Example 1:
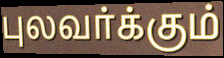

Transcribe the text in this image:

புலவர்க்கும்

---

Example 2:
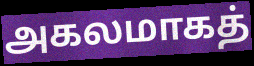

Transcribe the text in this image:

அகலமாகத்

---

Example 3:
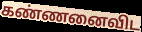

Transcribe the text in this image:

கண்ணனைவிட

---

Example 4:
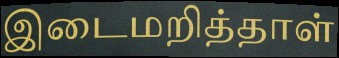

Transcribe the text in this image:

இடைமறித்தாள்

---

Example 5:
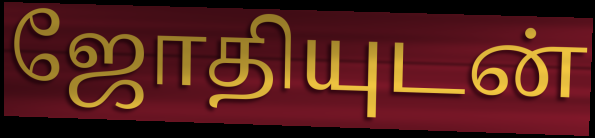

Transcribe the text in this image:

ஜோதியுடன்